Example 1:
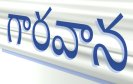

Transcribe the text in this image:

గారవాన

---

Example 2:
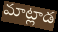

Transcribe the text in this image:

మాట్లాడ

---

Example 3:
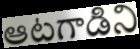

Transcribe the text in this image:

ఆటగాడిని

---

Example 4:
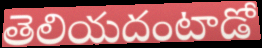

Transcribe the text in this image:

తెలియదంటాడో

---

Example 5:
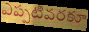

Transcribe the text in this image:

ఎప్పటివరకూ